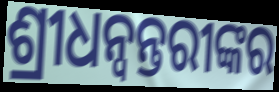
ଶ୍ରୀଧନ୍ୱନ୍ତରୀଙ୍କର